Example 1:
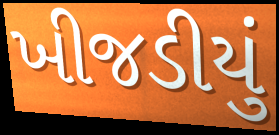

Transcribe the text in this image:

ખીજડીયું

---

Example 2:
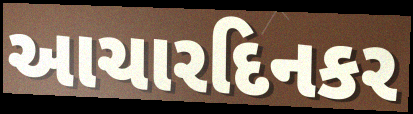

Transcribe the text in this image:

આચારદિનકર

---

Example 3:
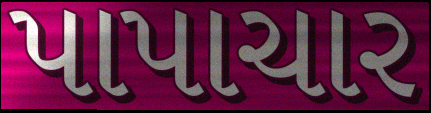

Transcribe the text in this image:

પાપાચાર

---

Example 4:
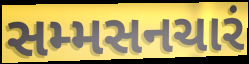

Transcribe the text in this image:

સમ્મસનચારં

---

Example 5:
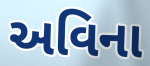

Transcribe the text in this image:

અવિના